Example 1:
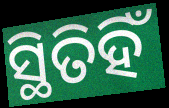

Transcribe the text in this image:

ସ୍ଥିତିହିଁ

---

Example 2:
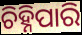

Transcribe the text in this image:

ଚିହ୍ନିପାରି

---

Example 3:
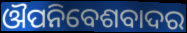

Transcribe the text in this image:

ଔପନିବେଶବାଦର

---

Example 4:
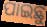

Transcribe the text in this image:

ପାଇଛୁ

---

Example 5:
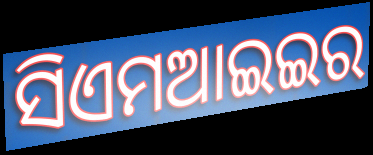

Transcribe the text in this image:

ସିଏମଆଇଇର